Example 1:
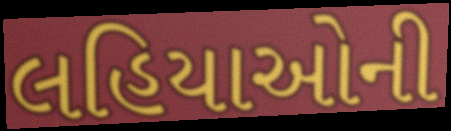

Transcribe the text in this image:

લહિયાઓની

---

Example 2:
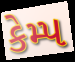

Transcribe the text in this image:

કેમ્પ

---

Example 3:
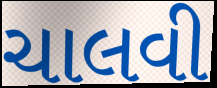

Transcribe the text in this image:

ચાલવી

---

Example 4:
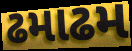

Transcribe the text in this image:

ઢમાઢમ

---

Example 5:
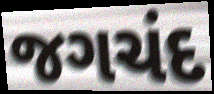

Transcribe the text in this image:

જગચંદ